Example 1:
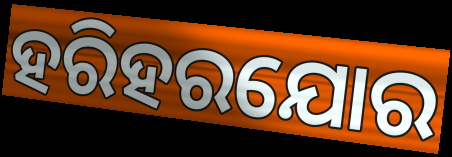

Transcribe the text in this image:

ହରିହରଯୋର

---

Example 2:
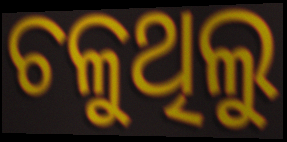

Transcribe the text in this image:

ଚଳୁଥିଲୁ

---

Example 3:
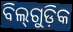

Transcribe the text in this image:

ବିଲ୍‌ଗୁଡ଼ିକ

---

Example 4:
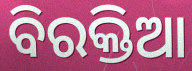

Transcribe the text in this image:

ବିରକ୍ତିଆ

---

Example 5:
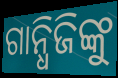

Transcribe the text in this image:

ଗାନ୍ଧିଜିଙ୍କୁ